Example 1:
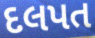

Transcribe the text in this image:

દલપત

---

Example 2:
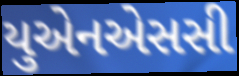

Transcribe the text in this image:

યુએનએસસી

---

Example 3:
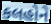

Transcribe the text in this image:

કલહોને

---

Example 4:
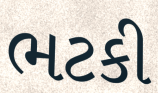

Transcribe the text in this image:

ભટકી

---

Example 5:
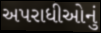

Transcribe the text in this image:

અપરાધીઓનું